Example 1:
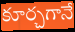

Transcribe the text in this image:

కూర్చగానే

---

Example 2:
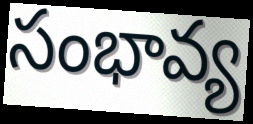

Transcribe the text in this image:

సంభావ్య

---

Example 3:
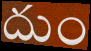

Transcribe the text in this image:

దుం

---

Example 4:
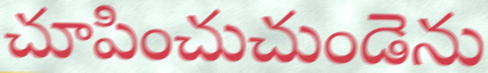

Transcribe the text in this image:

చూపించుచుండెను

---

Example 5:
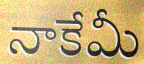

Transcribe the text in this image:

నాకేమీ